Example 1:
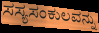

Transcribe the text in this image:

ಸಸ್ಯಸಂಕುಲವನ್ನು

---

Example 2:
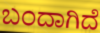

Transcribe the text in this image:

ಬಂದಾಗಿದೆ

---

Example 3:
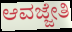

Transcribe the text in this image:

ಆವಜ್ಜೇತಿ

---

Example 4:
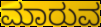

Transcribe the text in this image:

ಮಾರುವ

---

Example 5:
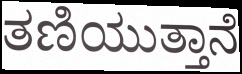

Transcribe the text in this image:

ತಣಿಯುತ್ತಾನೆ